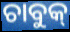
ଚାବୁକ୍